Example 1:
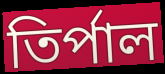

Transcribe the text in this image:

তিৰ্পাল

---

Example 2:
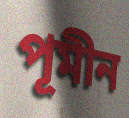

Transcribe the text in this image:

পূমীন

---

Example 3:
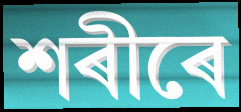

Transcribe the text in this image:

শৰীৰে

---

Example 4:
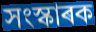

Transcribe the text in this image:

সংস্কাৰক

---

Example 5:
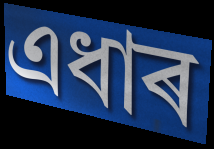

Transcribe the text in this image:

এধাৰ